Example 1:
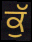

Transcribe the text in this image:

ਕੁੱ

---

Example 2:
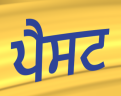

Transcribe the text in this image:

ਪੈਸਟ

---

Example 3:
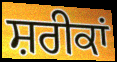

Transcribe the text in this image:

ਸ਼ਰੀਕਾਂ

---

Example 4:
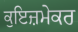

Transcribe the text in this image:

ਕੁਇਜ਼ਮੇਕਰ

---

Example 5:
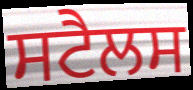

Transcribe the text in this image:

ਸਟੈਲਸ